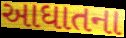
આઘાતના